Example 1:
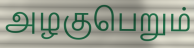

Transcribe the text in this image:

அழகுபெறும்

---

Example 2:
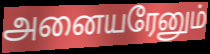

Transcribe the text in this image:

அனையரேனும்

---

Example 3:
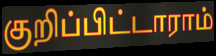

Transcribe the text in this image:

குறிப்பிட்டாராம்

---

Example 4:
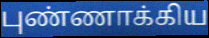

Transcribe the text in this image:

புண்ணாக்கிய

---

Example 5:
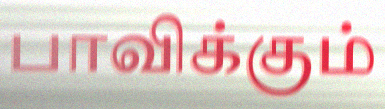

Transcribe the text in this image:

பாவிக்கும்